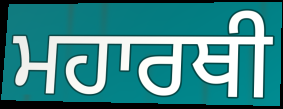
ਮਹਾਰਥੀ